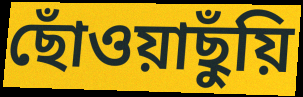
ছোঁওয়াছুঁয়ি